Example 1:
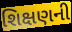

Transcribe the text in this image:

શિક્ષણની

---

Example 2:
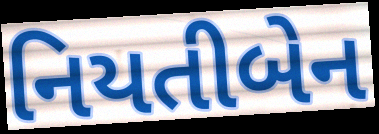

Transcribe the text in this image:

નિયતીબેન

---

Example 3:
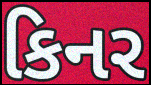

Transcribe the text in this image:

કિનર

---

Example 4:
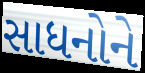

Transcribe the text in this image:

સાધનોને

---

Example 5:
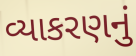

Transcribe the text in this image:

વ્યાકરણનું